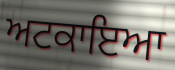
ਅਟਕਾਇਆ